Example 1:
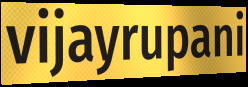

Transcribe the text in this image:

vijayrupani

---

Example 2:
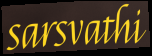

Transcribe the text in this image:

sarsvathi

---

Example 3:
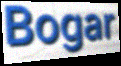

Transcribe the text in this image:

Bogar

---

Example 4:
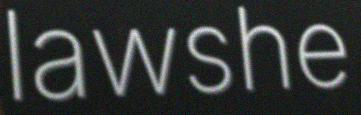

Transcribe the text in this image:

lawshe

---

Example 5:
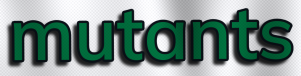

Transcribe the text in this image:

mutants